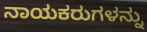
ನಾಯಕರುಗಳನ್ನು